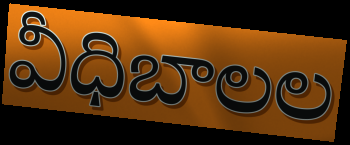
వీధిబాలల